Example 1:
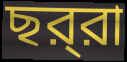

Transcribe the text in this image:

ছর্‌রা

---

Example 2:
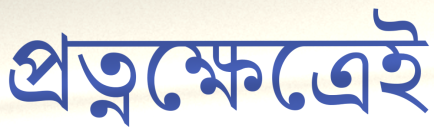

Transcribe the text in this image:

প্রত্নক্ষেত্রেই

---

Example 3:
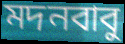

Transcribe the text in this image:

মদনবাবু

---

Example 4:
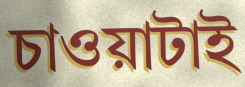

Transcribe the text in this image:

চাওয়াটাই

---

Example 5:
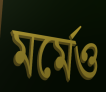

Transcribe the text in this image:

মর্মেও